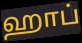
ஹாப்